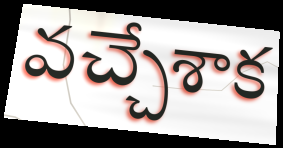
వచ్చేశాక